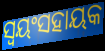
ସ୍ଵୟଂସହାୟକ